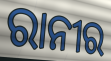
ରାନୀର